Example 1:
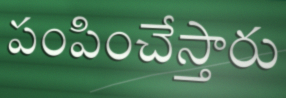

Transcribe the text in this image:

పంపించేస్తారు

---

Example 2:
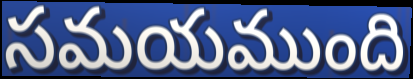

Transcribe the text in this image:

సమయముంది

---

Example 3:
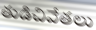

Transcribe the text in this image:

తుడిచివేతలు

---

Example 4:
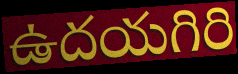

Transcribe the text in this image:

ఉదయగిరి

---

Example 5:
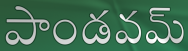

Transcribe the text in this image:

పాండవమ్